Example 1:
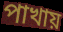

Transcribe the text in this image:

পাখায়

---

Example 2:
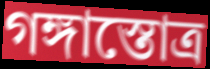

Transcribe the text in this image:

গঙ্গাস্তোত্র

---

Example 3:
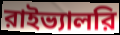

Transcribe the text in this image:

রাইভ্যালরি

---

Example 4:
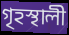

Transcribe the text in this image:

গৃহস্থালী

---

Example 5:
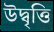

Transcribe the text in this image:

উদ্বৃত্তি